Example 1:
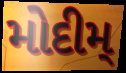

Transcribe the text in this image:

મોદીમ્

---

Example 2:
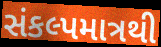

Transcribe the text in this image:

સંકલ્પમાત્રથી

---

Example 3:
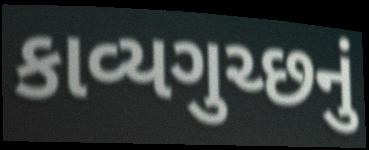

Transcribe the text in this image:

કાવ્યગુચ્છનું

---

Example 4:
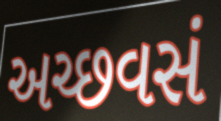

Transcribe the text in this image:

અચ્છવસં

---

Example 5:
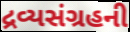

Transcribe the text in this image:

દ્રવ્યસંગ્રહની